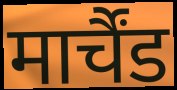
मार्चैंड